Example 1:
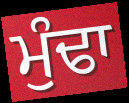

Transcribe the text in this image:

ਮੁੰਢਾ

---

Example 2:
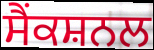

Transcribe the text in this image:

ਸੈਂਕਸ਼ਨਲ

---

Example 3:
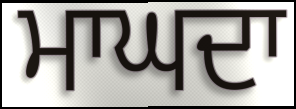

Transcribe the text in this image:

ਮਾਘਦਾ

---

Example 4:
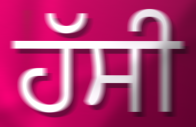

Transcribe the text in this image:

ਹੱਸੀ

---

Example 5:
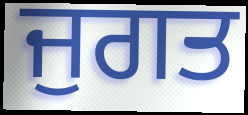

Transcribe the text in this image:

ਜੁਗਤ